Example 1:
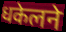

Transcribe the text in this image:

धकेलने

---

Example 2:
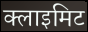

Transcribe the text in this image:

क्लाइमिट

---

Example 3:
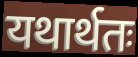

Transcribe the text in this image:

यथार्थतः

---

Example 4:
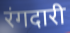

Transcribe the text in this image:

रंगदारी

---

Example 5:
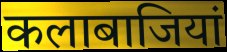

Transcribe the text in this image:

कलाबाजियां